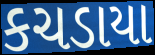
કચડાયા